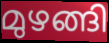
മുഴങ്ങി